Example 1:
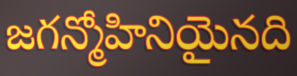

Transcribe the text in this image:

జగన్మోహినియైనది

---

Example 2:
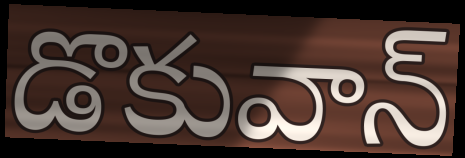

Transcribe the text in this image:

డొకువాన్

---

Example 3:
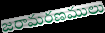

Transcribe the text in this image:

జరామరణములు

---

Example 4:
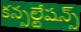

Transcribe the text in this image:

కన్సల్టేషన్స్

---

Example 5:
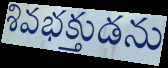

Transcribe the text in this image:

శివభక్తుడను